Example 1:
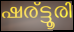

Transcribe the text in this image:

ഷര്ട്ടൂരി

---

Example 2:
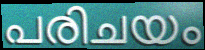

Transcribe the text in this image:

പരിചയം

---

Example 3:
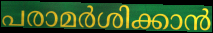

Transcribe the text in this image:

പരാമർശിക്കാൻ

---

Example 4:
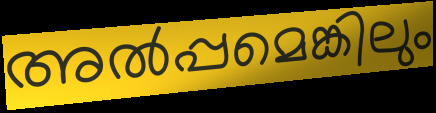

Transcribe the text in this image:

അൽപ്പമെങ്കിലും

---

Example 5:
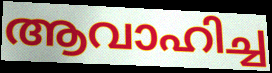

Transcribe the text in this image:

ആവാഹിച്ച